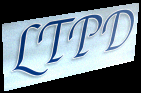
LTPD